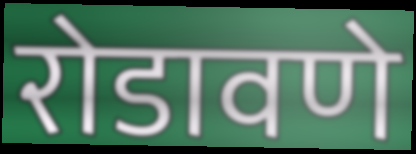
रोडावणे